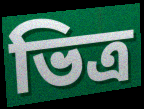
ভিত্র